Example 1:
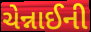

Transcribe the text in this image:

ચેન્નાઈની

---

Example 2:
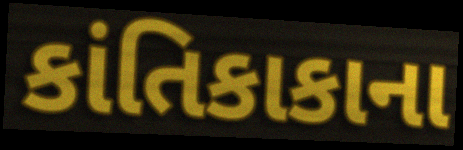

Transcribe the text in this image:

કાંતિકાકાના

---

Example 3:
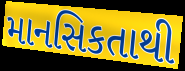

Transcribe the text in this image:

માનસિકતાથી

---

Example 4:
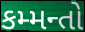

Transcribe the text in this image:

કમ્મન્તો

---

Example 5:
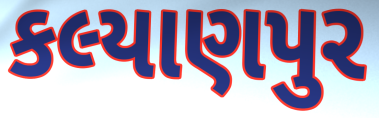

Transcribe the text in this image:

કલ્યાણપુર